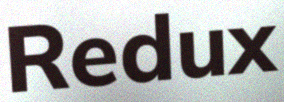
Redux